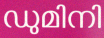
ഡുമിനി